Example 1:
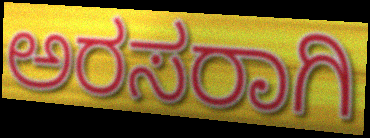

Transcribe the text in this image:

ಅರಸರಾಗಿ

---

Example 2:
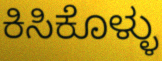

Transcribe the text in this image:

ಕಿಸಿಕೊಳ್ಳು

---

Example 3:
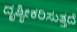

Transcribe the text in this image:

ದೃಶ್ಯೀಕರಿಸುತ್ತದೆ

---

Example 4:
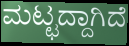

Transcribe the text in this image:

ಮಟ್ಟದ್ದಾಗಿದೆ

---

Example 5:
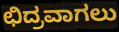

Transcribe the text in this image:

ಛಿದ್ರವಾಗಲು